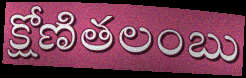
క్షోణితలంబు